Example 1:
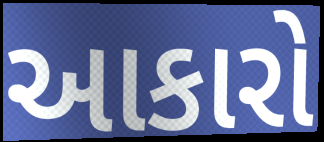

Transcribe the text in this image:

આકારો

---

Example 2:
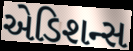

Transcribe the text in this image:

એડિશન્સ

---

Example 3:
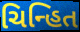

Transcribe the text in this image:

ચિન્હિત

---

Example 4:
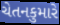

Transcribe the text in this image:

ચેતનકુમારે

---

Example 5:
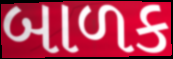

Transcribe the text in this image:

બાળક